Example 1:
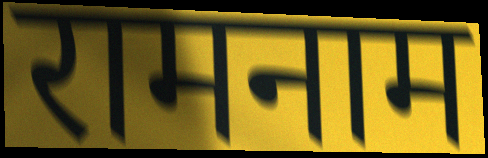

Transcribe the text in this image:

रामनाम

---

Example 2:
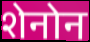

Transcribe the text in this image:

शेनोन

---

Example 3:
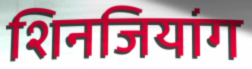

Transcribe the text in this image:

शिनजियांग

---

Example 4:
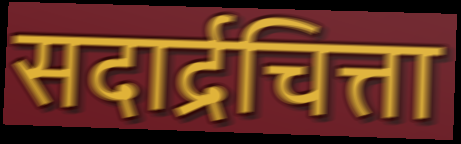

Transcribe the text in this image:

सदार्द्रचित्ता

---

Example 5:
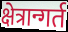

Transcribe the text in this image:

क्षेत्रान्गर्त